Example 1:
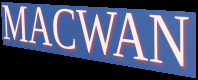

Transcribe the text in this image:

MACWAN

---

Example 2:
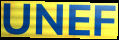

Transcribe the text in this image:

UNEF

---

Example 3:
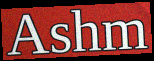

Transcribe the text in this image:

Ashm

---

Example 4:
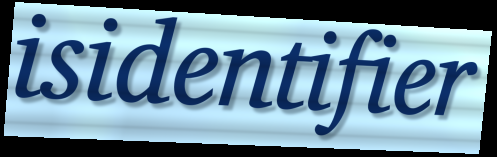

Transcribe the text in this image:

isidentifier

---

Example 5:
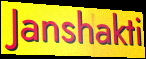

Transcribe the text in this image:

Janshakti